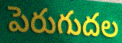
పెరుగుదల